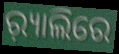
ର଼୍ୟାଲିରେ